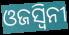
ଓଜସ୍ଵିନୀ